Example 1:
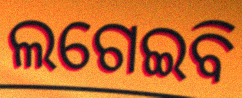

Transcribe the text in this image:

ଲଗେଇବି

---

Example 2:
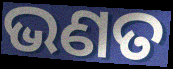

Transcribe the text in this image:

ଭଣତ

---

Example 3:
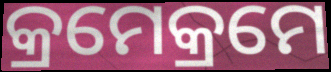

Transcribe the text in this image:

କ୍ରମେକ୍ରମେ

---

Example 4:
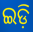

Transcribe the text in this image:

ଇଡ଼ି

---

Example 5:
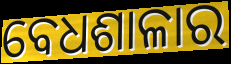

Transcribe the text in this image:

ବେଧଶାଳାର